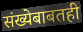
संख्येबाबतही